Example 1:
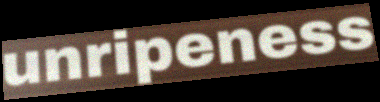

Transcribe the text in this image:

unripeness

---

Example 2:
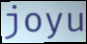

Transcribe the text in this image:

joyu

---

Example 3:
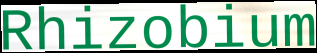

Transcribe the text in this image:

Rhizobium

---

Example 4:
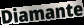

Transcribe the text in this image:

Diamante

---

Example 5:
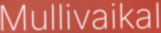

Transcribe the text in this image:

Mullivaikal